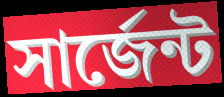
সার্জেন্ট